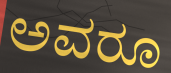
ಅವರೂ